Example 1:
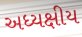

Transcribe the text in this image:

અધ્યક્ષીય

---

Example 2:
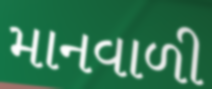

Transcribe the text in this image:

માનવાળી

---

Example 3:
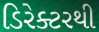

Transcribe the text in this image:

ડિરેક્ટરથી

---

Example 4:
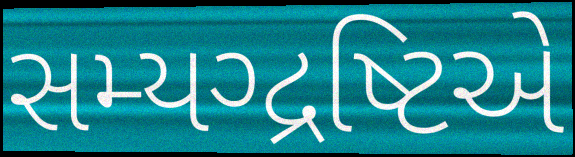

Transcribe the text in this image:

સમ્યગ્દ્રષ્ટિએ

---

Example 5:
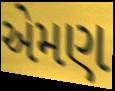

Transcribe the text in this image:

એમણ